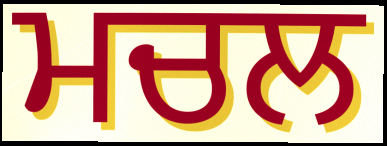
ਮਚਲ